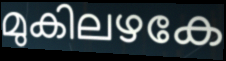
മുകിലഴകേ